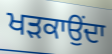
ਖੜਕਾਉਂਦਾ